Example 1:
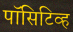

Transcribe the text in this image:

पॉसिटिव्ह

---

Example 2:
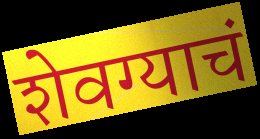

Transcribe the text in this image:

शेवग्याचं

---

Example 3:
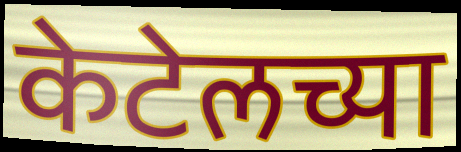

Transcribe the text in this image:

केटेलच्या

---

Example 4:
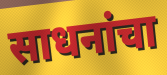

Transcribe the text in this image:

साधनांचा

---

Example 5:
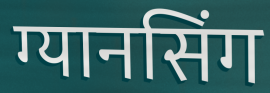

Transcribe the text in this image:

ग्यानसिंग